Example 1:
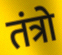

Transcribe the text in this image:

तंत्रो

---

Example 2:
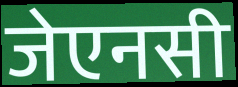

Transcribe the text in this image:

जेएनसी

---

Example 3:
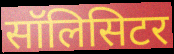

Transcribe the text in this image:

सॉलिसिटर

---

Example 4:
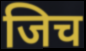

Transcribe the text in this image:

जिच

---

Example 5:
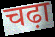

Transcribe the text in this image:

चढ़ा